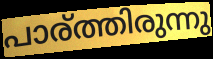
പാര്ത്തിരുന്നു